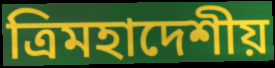
ত্রিমহাদেশীয়